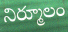
నిర్మూలం